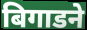
बिगाडने